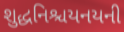
શુદ્ધનિશ્ચયનયની